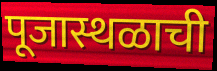
पूजास्थळाची